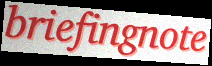
briefingnote